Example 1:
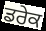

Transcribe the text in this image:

ਡਰੇਕ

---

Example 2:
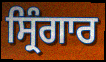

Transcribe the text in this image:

ਸ੍ਰਿੰਗਾਰ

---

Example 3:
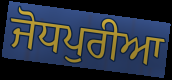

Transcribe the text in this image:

ਜੋਧਪੁਰੀਆ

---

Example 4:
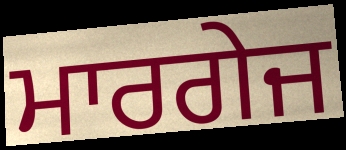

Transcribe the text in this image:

ਮਾਰਗੇਜ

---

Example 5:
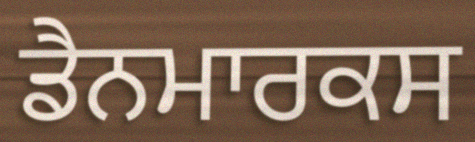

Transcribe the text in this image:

ਡੈਨਮਾਰਕਸ